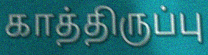
காத்திருப்பு